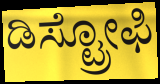
ಡಿಸ್ಟ್ರೋಫಿ